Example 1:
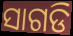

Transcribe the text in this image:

ସାଗଡି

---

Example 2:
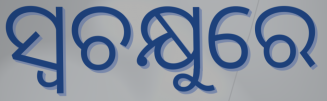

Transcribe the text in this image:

ସ୍ୱଚକ୍ଷୁରେ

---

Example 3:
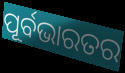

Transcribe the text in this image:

ପୂର୍ବଭାରତର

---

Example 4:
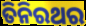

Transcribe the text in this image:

ତିନିରଥର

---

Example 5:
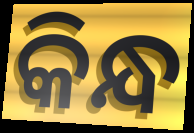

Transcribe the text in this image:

କିନ୍ଧ